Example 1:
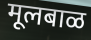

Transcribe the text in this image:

मूलबाळ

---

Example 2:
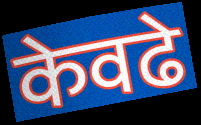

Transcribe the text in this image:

केवढे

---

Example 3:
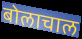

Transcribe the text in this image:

बोलाचाल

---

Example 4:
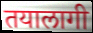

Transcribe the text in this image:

तयालागी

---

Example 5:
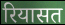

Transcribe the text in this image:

रियासत